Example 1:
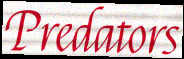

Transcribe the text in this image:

Predators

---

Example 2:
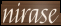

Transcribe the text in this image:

nirase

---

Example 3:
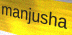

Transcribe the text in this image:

manjusha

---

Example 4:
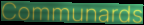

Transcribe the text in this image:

Communards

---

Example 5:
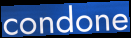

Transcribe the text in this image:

condone